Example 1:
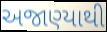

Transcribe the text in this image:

અજાણ્યાથી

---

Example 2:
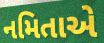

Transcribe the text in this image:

નમિતાએ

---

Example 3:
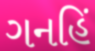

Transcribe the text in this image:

ગનહિં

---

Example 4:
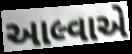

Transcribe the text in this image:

આલ્વાએ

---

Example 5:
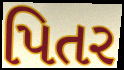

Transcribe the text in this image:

પિતર